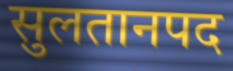
सुलतानपद